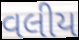
વલીય